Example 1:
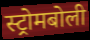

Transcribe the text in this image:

स्ट्रोमबोली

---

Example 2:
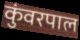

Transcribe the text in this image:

कुंवरपाल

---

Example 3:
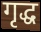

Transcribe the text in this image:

गृद्ध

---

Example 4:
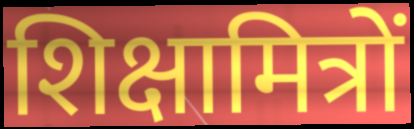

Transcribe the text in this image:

शिक्षामित्रों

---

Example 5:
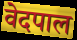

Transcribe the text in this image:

वेदपाल